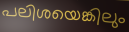
പലിശയെങ്കിലും